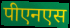
पीएनएस